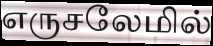
எருசலேமில்